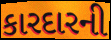
કારદારની